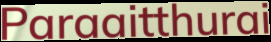
Paraaitthurai